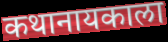
कथानायकाला